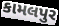
કામલપુર